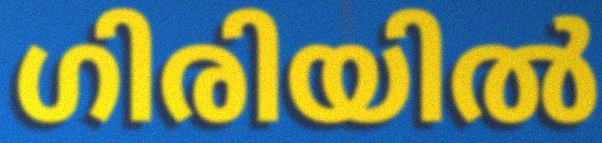
ഗിരിയിൽ